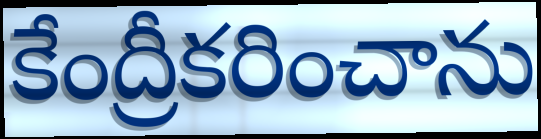
కేంద్రీకరించాను